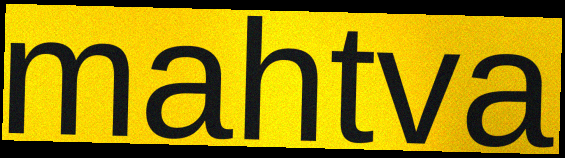
mahtva